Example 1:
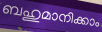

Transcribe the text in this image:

ബഹുമാനിക്കാം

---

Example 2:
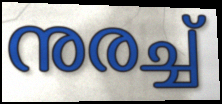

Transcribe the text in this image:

നുരച്ച്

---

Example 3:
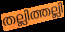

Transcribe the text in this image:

തല്ലിത്തല്ലി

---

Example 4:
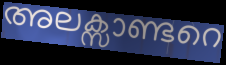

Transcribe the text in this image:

അലക്സാണ്ടറെ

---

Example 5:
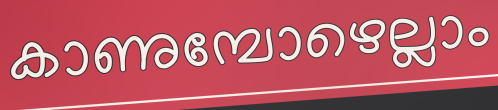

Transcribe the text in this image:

കാണുമ്പോഴെല്ലാം